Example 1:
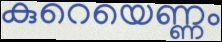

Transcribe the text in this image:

കുറെയെണ്ണം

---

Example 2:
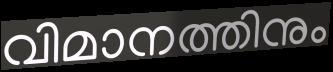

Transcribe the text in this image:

വിമാനത്തിനും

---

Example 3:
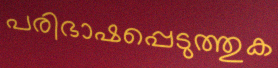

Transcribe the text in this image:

പരിഭാഷപ്പെടുത്തുക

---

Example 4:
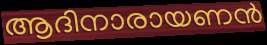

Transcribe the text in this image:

ആദിനാരായണൻ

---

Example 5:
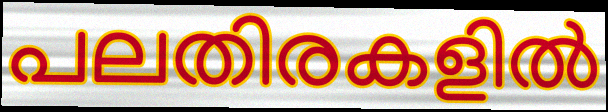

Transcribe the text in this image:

പലതിരകളിൽ